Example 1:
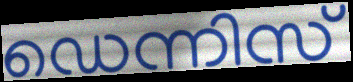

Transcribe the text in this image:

ഡെന്നിസ്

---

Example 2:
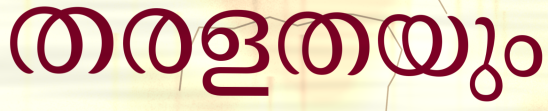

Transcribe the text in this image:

തരളതയും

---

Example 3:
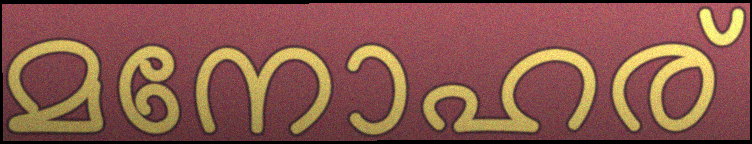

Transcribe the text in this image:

മനോഹര്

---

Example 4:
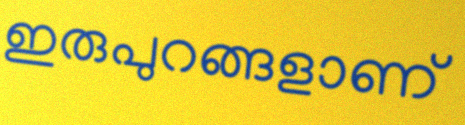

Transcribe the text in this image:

ഇരുപുറങ്ങളാണ്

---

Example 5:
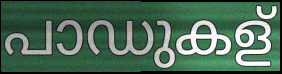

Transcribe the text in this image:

പാഡുകള്